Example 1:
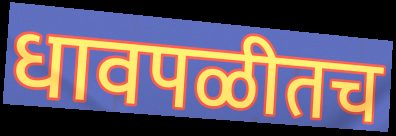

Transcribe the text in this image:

धावपळीतच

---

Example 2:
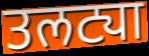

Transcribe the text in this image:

उलट्या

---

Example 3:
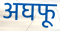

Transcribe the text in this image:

अघफू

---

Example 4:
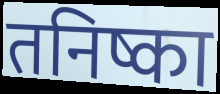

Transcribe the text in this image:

तनिष्का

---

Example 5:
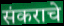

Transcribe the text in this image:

संकराचे